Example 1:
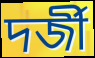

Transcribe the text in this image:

দৰ্জী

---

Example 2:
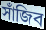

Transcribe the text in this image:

সাঁজিব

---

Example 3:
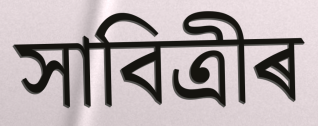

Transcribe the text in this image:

সাবিত্ৰীৰ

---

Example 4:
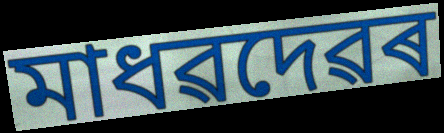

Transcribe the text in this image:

মাধৱদেৱৰ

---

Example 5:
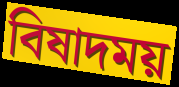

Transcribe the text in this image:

বিষাদময়